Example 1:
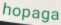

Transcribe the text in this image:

hopaga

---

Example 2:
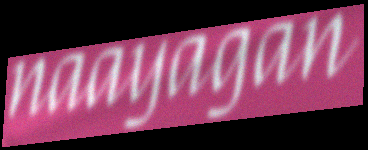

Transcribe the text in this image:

naayagan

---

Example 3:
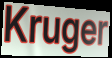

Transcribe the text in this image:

Kruger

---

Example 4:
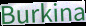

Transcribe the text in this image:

Burkina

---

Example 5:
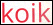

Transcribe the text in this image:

koik